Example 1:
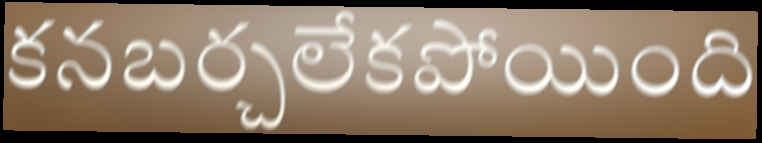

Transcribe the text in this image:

కనబర్చలేకపోయింది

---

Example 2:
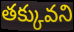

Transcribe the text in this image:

తక్కువని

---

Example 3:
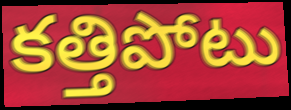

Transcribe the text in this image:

కత్తిపోటు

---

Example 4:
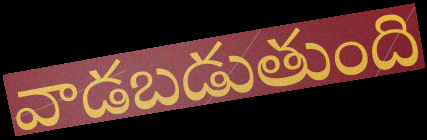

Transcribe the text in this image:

వాడబడుతుంది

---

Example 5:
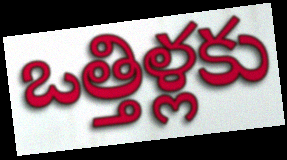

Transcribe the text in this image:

ఒత్తిళ్లకు